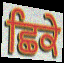
ਛਿਕੇ